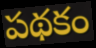
పథకం